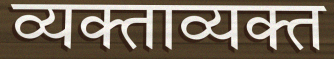
व्यक्ताव्यक्त